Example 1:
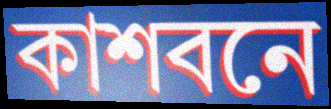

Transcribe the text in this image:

কাশবনে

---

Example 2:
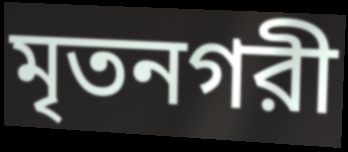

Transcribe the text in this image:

মৃতনগরী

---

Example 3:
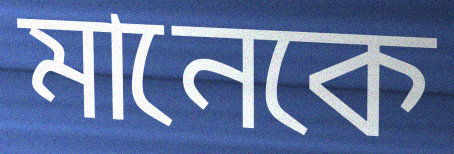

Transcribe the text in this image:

মানেকে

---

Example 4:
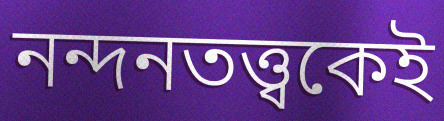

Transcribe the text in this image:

নন্দনতত্ত্বকেই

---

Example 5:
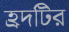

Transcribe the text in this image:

হ্রদটির